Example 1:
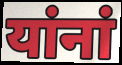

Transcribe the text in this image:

यांनां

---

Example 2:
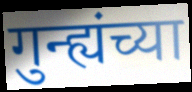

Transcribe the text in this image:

गुन्ह्यंच्या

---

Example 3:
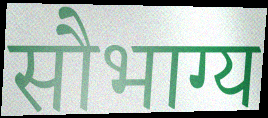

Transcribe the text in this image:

सौभाग्य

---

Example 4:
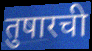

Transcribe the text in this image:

तुषारची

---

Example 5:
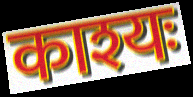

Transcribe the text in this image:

काश्यः